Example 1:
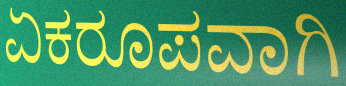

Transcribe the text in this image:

ಏಕರೂಪವಾಗಿ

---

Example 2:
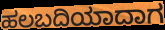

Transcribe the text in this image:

ಹಲಬದಿಯಾದಾಗ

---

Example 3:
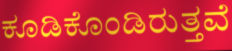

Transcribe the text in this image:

ಕೂಡಿಕೊಂಡಿರುತ್ತವೆ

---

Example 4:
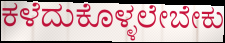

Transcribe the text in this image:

ಕಳೆದುಕೊಳ್ಳಲೇಬೇಕು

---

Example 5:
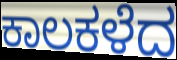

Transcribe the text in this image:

ಕಾಲಕಳೆದ